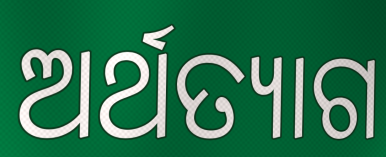
ଅର୍ଥତ୍ୟାଗ